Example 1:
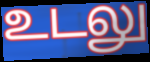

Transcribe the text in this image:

உடலு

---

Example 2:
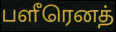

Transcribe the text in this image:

பளீரெனத்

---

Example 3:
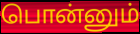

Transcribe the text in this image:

பொன்னும்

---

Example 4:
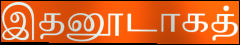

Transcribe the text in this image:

இதனூடாகத்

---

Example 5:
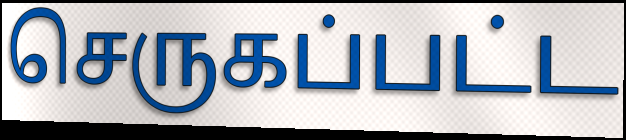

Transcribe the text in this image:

செருகப்பட்ட